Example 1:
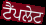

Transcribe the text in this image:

ਟੈਂਪਲੇਟ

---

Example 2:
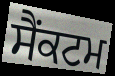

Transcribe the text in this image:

ਸੈੰਕਟਮ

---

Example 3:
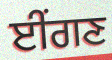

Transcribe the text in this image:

ਈਂਗਣ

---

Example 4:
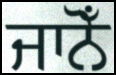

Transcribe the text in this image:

ਜਾਨੋਁ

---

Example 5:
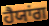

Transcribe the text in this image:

ਹੈਯਾਂਗ